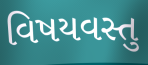
વિષયવસ્તુ